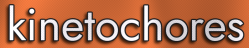
kinetochores